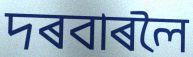
দৰবাৰলৈ